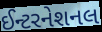
ઈન્ટરનેશનલ